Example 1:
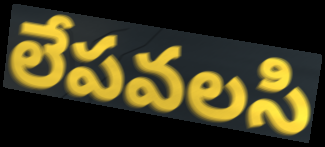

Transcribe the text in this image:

లేపవలసి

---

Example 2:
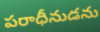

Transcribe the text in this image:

పరాధీనుడను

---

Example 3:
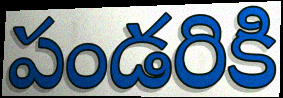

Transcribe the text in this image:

పండరికి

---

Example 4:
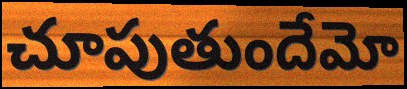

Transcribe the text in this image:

చూపుతుందేమో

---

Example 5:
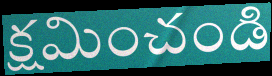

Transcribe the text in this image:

క్షమించండి